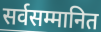
सर्वसम्मानित